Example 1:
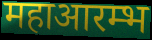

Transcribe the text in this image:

महाआरम्भ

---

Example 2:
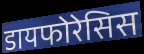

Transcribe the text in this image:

डायफोरेसिस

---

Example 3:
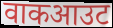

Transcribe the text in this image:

वाकआउट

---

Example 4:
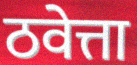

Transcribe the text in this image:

ठवेत्ता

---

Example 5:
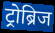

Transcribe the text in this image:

ट्रोब्रिज